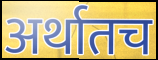
अर्थातच